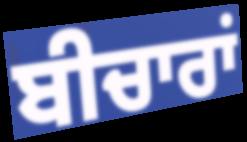
ਬੀਚਾਰਾਂ